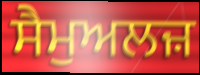
ਸੈਮੁਅਲਜ਼